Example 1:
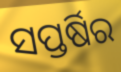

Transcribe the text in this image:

ସପ୍ତର୍ଷିର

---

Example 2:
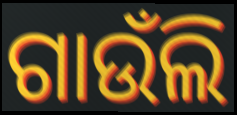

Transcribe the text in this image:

ଗାଉଁଲି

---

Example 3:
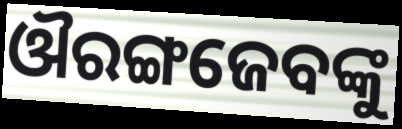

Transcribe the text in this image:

ଔରଙ୍ଗଜେବଙ୍କୁ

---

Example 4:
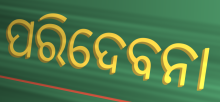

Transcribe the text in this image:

ପରିଦେବନା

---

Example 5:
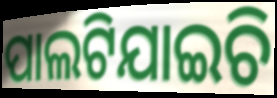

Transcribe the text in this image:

ପାଲଟିଯାଇଚି